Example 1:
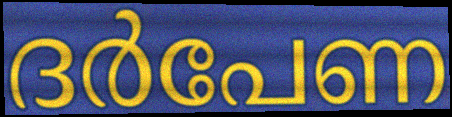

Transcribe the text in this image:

ദർപേണ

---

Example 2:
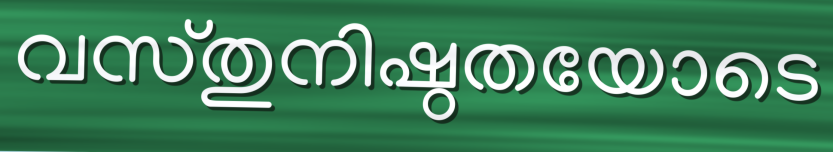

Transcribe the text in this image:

വസ്തുനിഷ്ഠതയോടെ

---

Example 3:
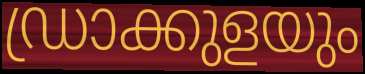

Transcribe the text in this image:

ഡ്രാക്കുളയും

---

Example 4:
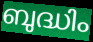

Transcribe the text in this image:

ബുദ്ധിം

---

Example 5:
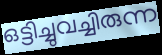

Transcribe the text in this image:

ഒട്ടിച്ചുവച്ചിരുന്ന